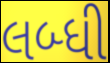
લબ્ધી